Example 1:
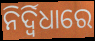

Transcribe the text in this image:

ନିର୍ଦ୍ୱିଧାରେ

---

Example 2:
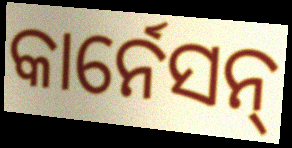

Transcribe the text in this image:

କାର୍ନେସନ୍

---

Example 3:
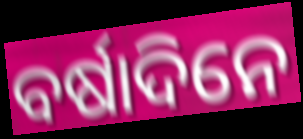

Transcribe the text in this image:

ବର୍ଷାଦିନେ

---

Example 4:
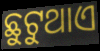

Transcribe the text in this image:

ଛୁଟୁଥାଏ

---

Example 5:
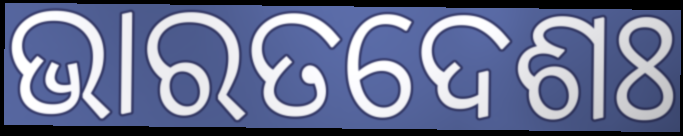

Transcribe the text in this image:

ଭାରତଦେଶଃ